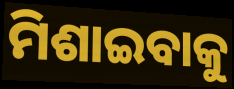
ମିଶାଇବାକୁ